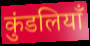
कुंडलियाँ